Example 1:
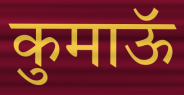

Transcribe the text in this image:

कुमाऊॅ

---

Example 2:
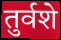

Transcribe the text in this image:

तुर्वशे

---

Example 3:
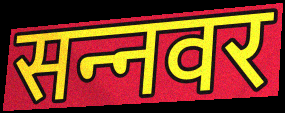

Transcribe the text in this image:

सन्नवर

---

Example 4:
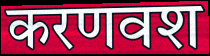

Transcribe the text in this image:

करणवश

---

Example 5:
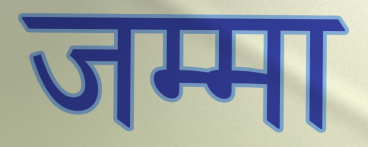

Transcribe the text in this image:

जम्मा